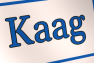
Kaag